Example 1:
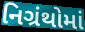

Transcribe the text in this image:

નિગ્રંથોમાં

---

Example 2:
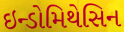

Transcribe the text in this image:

ઇન્ડોમિથેસિન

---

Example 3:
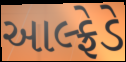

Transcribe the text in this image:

આલ્ફ્રેડે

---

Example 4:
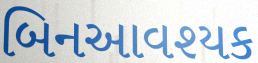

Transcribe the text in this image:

બિનઆવશ્યક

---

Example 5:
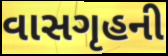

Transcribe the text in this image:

વાસગૃહની